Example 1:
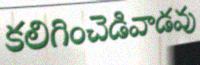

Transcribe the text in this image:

కలిగించెడివాడవు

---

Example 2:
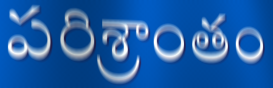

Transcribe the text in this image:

పరిశ్రాంతం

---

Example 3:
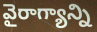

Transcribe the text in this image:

వైరాగ్యాన్ని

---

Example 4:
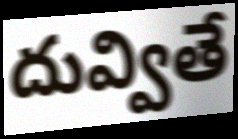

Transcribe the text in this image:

దువ్వితే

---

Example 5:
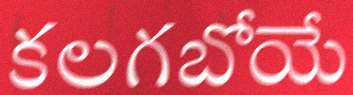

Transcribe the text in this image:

కలగబోయే